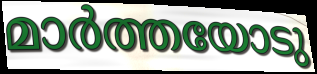
മാർത്തയോടു